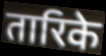
तारिके